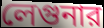
লেগুনার